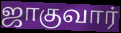
ஜாகுவார்